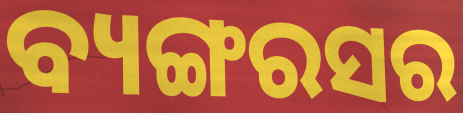
ବ୍ୟଙ୍ଗରସର